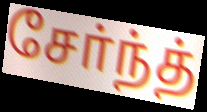
சேர்ந்த்